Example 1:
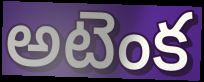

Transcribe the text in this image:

అటెంక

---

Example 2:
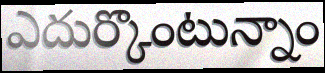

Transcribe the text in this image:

ఎదుర్కొంటున్నాం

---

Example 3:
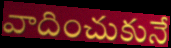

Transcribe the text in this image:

వాదించుకునే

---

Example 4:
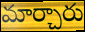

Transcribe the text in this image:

మార్చారు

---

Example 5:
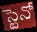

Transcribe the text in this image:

స్టెనో